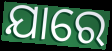
ଯାରେ